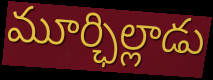
మూర్ఛిల్లాడు